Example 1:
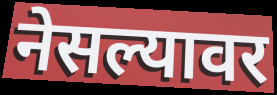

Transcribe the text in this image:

नेसल्यावर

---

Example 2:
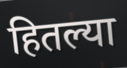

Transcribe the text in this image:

हितल्या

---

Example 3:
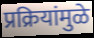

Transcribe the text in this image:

प्रक्रियांमुळे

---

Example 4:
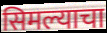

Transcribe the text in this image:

सिमल्याचा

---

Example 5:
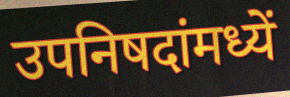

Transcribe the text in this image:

उपनिषदांमध्यें